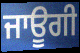
ਜਾਊਗੀ